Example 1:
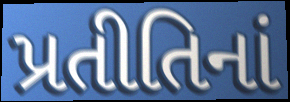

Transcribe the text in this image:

પ્રતીતિનાં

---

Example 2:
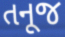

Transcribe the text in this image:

તનૂજ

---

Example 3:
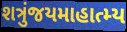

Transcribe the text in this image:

શત્રુંજયમાહાત્મ્ય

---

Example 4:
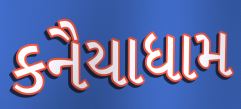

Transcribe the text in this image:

કનૈયાધામ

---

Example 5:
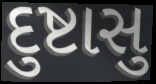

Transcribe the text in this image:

દુષ્ટાસુ